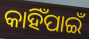
କାହିଁପାଇଁ